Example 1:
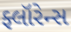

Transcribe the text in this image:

ફ્લૉરેન્સ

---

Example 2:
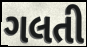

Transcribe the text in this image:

ગલતી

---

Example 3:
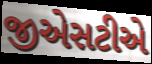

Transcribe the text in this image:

જીએસટીએ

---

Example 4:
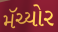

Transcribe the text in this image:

મૅચ્યોર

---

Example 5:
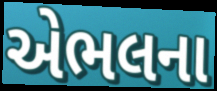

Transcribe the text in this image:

એભલના